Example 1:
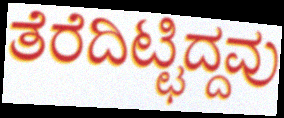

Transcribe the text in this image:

ತೆರೆದಿಟ್ಟಿದ್ದವು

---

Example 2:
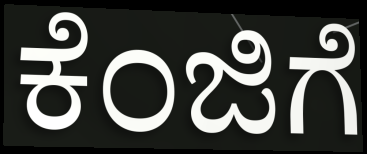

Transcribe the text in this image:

ಕೆಂಜಿಗೆ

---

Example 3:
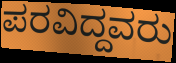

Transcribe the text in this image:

ಪರವಿದ್ದವರು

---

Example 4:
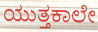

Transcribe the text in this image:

ಯುತ್ತಕಾಲೇ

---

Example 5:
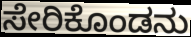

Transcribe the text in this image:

ಸೇರಿಕೊಂಡನು